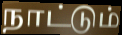
நாட்டும்